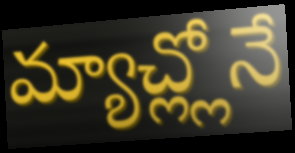
మ్యాచ్ల్లోనే